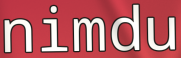
nimdu